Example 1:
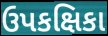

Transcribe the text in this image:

ઉપકક્ષિકા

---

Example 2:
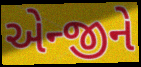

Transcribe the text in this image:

એન્જીને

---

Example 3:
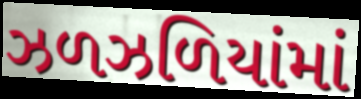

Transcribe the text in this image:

ઝળઝળિયાંમાં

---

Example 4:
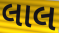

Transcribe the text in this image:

લાલ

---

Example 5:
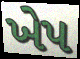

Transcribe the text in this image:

ખેપ